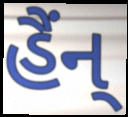
હૈંન્